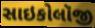
સાઇકોલૉજી